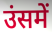
उंसमें